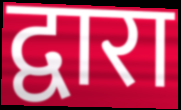
द्वारा